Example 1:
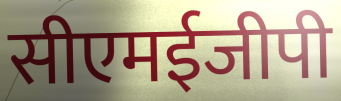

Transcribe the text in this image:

सीएमईजीपी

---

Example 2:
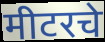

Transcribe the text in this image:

मीटरचे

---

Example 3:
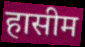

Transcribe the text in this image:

हासीम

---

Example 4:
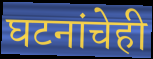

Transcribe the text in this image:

घटनांचेही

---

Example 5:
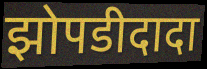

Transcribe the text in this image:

झोपडीदादा